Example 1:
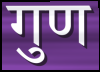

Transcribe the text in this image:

गुण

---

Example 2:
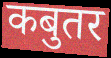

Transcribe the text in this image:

कबुतर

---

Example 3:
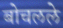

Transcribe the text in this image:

बोचलले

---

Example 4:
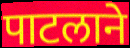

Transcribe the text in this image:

पाटलाने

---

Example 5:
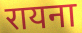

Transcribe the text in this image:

रायना